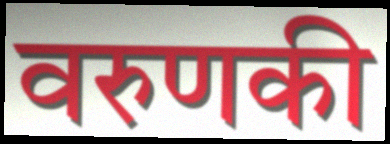
वरुणकी